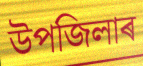
উপজিলাৰ